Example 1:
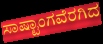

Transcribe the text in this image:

ಸಾಷ್ಟಾಂಗವೆರಗಿದ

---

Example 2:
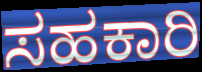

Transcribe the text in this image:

ಸಹಕಾರಿ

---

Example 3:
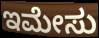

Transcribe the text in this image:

ಇಮೇಸು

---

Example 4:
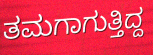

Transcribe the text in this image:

ತಮಗಾಗುತ್ತಿದ್ದ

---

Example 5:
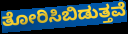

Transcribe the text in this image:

ತೋರಿಸಿಬಿಡುತ್ತವೆ